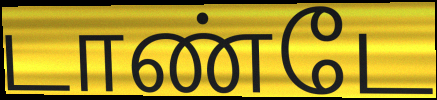
டாண்டே